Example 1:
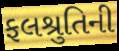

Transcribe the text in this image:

ફલશ્રુતિની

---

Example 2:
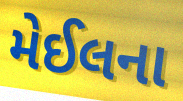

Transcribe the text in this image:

મેઈલના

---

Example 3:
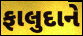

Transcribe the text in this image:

ફાલુદાને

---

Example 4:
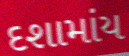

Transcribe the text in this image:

દશામાંય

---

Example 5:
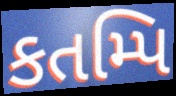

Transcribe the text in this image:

કતમ્પિ